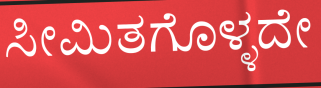
ಸೀಮಿತಗೊಳ್ಳದೇ